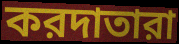
করদাতারা